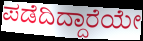
ಪಡೆದಿದ್ದಾರೆಯೇ